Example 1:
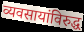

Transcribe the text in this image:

व्यवसायांविरुद्ध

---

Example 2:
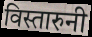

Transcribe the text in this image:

विस्तारुनी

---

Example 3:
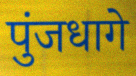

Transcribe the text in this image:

पुंजधागे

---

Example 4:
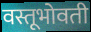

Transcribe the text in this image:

वस्तूभोवती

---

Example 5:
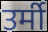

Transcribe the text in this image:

उर्मी